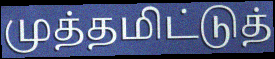
முத்தமிட்டுத்